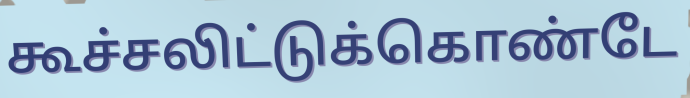
கூச்சலிட்டுக்கொண்டே